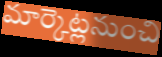
మార్కెట్లనుంచి